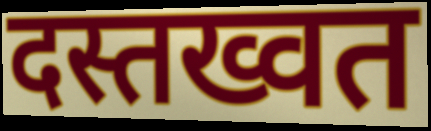
दस्तख्वत